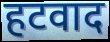
हटवाद